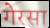
गेरसा